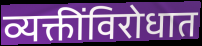
व्यक्तींविरोधात